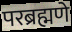
परब्रह्मणे